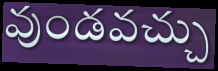
వుండవచ్చు